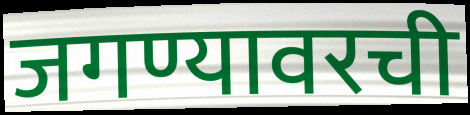
जगण्यावरची